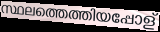
സ്ഥലത്തെത്തിയപ്പോള്